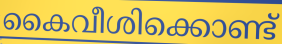
കൈവീശിക്കൊണ്ട്